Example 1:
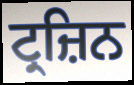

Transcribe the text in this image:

ਟ੍ਰਜ਼ਿਨ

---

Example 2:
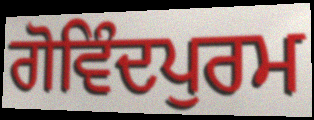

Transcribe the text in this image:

ਗੋਵਿੰਦਪੁਰਮ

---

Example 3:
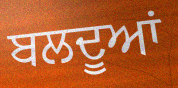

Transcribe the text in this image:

ਬਲਦੂਆਂ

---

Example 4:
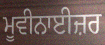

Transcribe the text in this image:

ਮੂਵੀਨਾਈਜ਼ਰ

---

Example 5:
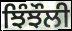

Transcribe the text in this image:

ਝਿੰਝੌਲੀ